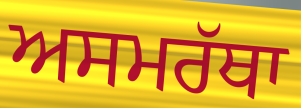
ਅਸਮਰੱਥਾ